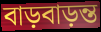
বাড়বাড়ন্ত